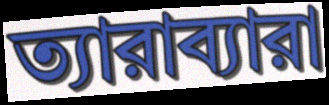
ত্যারাব্যারা